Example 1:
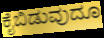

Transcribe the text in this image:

ಕೈಬಿಡುವುದೂ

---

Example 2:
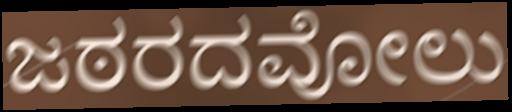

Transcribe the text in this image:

ಜಠರದವೋಲು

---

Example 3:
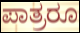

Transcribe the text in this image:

ಪಾತ್ರರೂ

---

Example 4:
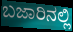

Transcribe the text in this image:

ಬಜಾರಿನಲ್ಲಿ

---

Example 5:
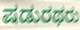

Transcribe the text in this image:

ಷಡುರಥರು